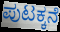
ಪುಟಕ್ಕನೆ